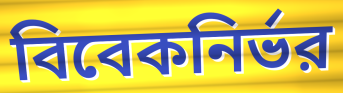
বিবেকনির্ভর